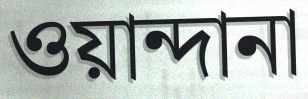
ওয়ান্দানা